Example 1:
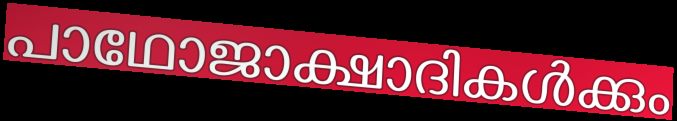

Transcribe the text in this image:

പാഥോജാക്ഷാദികൾക്കും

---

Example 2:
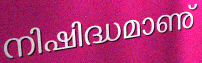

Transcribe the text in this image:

നിഷിദ്ധമാണു്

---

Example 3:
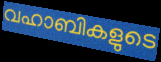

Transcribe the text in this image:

വഹാബികളുടെ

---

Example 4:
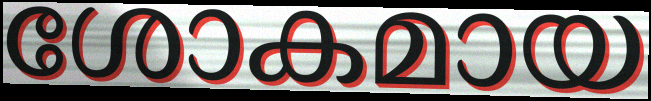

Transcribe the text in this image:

ശോകമായ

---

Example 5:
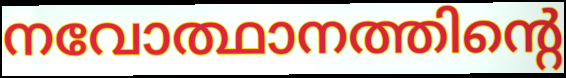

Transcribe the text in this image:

നവോത്ഥാനത്തിന്റെ